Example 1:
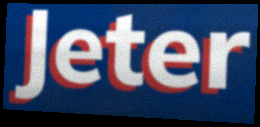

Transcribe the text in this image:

Jeter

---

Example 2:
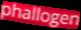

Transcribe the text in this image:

phallogen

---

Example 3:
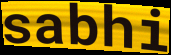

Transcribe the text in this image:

sabhi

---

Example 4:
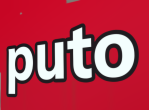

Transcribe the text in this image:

puto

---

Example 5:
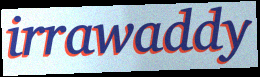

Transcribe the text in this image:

irrawaddy